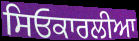
ਸਿਓਕਾਰਲੀਆ